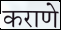
कराणे